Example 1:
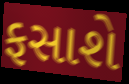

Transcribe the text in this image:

ફસાશે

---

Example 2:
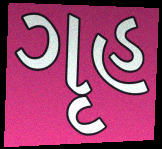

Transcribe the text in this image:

ગૃહ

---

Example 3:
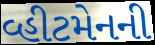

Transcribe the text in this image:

વ્હીટમેનની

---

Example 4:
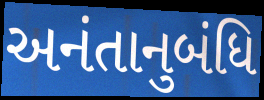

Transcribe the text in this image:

અનંતાનુબંધિ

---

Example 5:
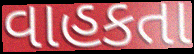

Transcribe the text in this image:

વાહકતા